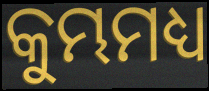
କୁମ୍ଭମଧ୍ୟ